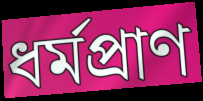
ধৰ্মপ্ৰাণ